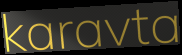
karavta